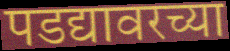
पडद्यावरच्या